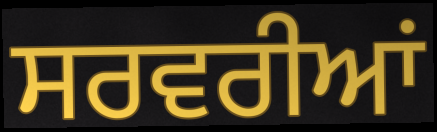
ਸਰਵਰੀਆਂ